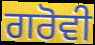
ਗਰੋਵੀ